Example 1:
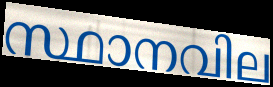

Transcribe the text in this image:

സ്ഥാനവില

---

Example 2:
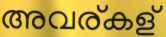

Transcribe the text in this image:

അവര്കള്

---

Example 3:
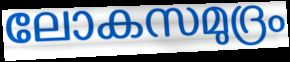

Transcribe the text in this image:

ലോകസമുദ്രം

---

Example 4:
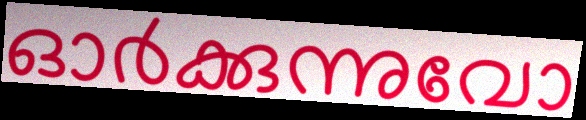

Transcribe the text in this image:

ഓർക്കുന്നുവോ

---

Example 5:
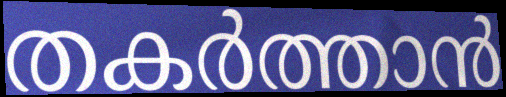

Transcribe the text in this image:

തകർത്താൻ